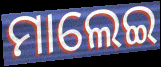
ମାଲେଇ